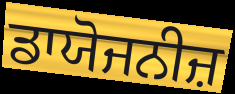
ਡਾਯੋਜਨੀਜ਼